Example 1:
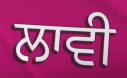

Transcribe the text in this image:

ਲਾਵੀ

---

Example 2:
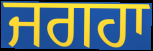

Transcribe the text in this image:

ਜਗਹਾ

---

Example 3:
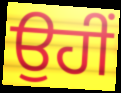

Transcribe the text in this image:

ਉਹੀਂ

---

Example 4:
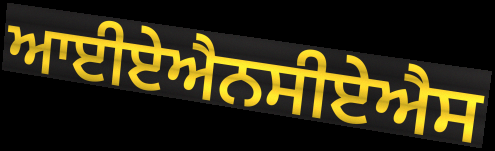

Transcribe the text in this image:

ਆਈਏਐਨਸੀਏਐਸ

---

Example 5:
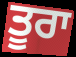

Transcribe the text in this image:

ਤੂਰਾ